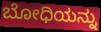
ಬೋಧಿಯನ್ನು